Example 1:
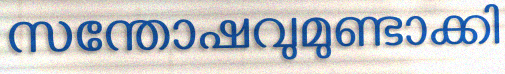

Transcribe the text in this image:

സന്തോഷവുമുണ്ടാക്കി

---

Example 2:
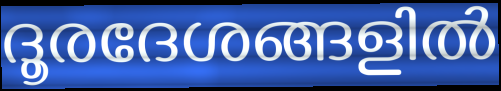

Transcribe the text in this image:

ദൂരദേശങ്ങളിൽ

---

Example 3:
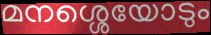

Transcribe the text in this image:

മനശ്ശെയോടും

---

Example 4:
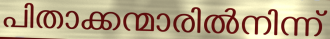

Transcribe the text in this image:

പിതാക്കന്മാരിൽനിന്ന്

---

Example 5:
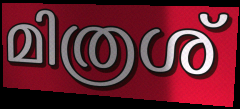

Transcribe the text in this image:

മിത്രശ്